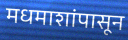
मधमाशांपासून